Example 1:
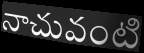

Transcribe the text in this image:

నాచువంటి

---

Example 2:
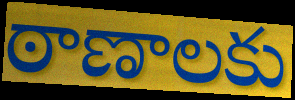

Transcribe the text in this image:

ఠాణాలకు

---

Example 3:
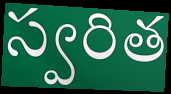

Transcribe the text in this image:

స్వరిత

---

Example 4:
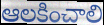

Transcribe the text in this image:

ఆలకించాలి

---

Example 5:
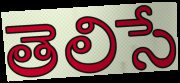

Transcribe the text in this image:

తెలిసే